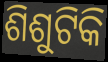
ଶିଶୁଟିକି